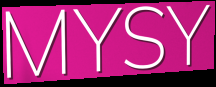
MYSY